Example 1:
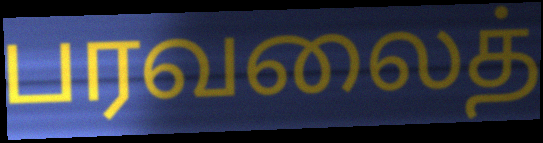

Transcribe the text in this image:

பரவலைத்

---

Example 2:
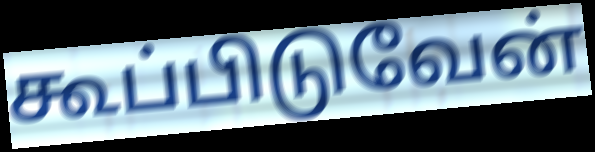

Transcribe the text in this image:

கூப்பிடுவேன்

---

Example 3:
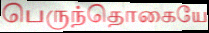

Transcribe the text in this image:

பெருந்தொகையே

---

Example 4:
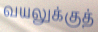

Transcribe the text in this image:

வயலுக்குத்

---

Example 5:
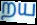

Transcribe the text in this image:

றய